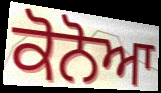
ਕੋਨੋਆ